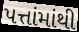
પત્તાંમાંથી